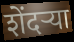
शेंदर्‍या